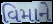
વિમાને